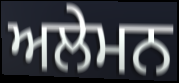
ਅਲੇਮਨ